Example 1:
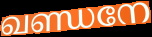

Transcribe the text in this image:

ഖണ്ഡനേ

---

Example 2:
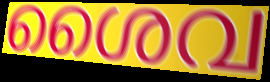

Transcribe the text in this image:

ശൈവ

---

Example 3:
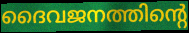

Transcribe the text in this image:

ദൈവജനത്തിന്റെ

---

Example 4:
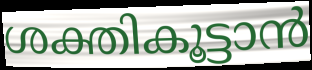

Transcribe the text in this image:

ശക്തികൂട്ടാൻ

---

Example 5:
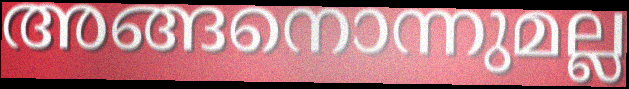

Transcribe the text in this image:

അങ്ങനൊന്നുമല്ല